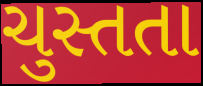
ચુસ્તતા